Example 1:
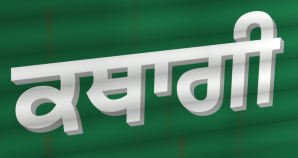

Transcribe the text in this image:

ਕਥਾਗੀ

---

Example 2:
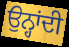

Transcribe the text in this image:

ਉਨ੍ਹਾਂਦੀ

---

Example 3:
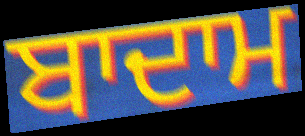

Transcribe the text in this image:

ਬਾਦਾਮ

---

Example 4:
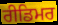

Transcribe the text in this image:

ਰੀਡਿਮਰ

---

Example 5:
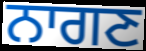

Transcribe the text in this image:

ਨਾਗਣ